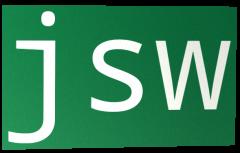
jsw